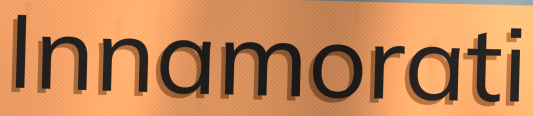
Innamorati